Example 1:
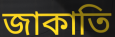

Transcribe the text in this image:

জাকাতি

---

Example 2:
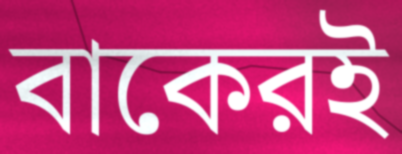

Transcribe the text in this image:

বাকেরই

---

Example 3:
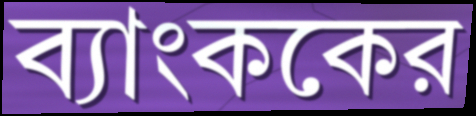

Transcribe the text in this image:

ব্যাংককের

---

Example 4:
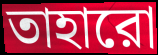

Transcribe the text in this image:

তাহারো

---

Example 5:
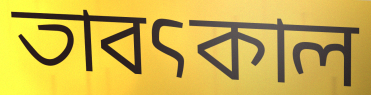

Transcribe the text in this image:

তাবৎকাল